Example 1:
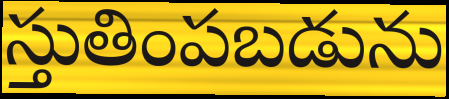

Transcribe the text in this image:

స్తుతింపబడును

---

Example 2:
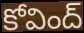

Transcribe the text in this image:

కోవింద్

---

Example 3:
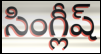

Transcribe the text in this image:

సింగ్లీష్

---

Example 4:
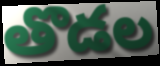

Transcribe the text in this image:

తొడల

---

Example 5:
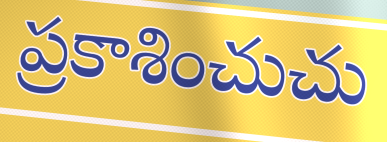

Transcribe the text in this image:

ప్రకాశించుచు